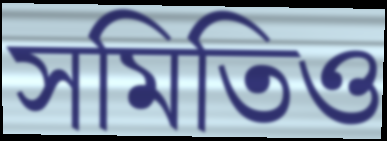
সমিতিও